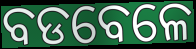
ବଡବେଳେ